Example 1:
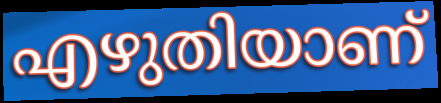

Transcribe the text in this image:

എഴുതിയാണ്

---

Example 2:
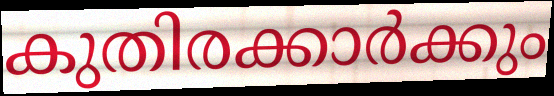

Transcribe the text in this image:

കുതിരക്കാർക്കും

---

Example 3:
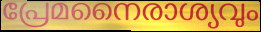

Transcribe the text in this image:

പ്രേമനൈരാശ്യവും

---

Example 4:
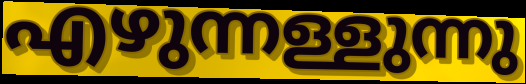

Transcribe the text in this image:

എഴുന്നള്ളുന്നു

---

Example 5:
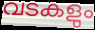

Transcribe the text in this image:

വടകളും